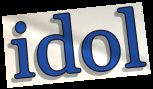
idol